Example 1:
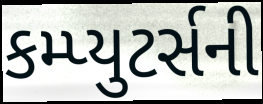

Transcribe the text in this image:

કમ્પ્યુટર્સની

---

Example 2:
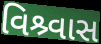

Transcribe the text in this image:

વિશ્ર્વાસ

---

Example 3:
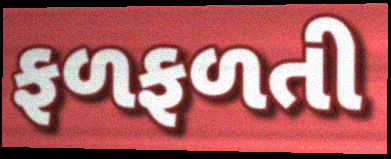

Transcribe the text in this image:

ફળફળતી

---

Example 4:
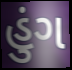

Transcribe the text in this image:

હુંગ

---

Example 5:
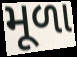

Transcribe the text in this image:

મૂળા